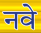
नवे